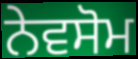
ਨੇਵਸੋਮ